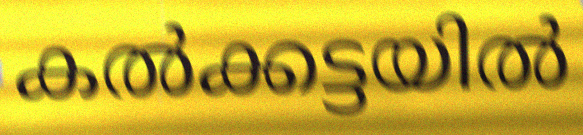
കൽക്കട്ടയിൽ